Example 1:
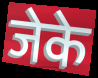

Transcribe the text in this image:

जेके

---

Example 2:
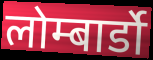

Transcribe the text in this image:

लोम्बार्डो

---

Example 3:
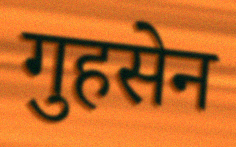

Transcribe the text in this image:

गुहसेन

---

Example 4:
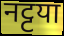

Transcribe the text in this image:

नट्टया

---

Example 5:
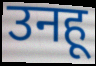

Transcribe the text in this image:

उनहू